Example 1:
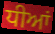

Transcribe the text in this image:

ਧੀਆਂ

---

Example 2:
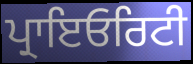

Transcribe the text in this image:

ਪ੍ਰਾਇਓਰਿਟੀ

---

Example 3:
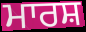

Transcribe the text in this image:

ਮਾਰਸ਼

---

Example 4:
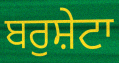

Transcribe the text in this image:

ਬਰੁਸ਼ੇਟਾ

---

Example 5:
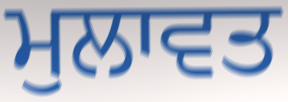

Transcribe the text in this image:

ਮੁਲਾਵਤ